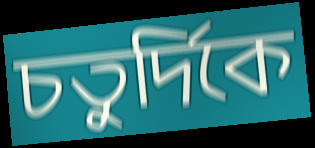
চতুর্দিকে